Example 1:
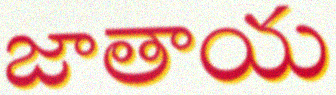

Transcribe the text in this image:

జాతాయ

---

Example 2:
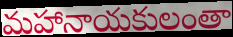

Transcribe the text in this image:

మహానాయకులంతా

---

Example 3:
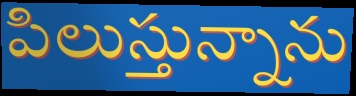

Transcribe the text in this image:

పిలుస్తున్నాను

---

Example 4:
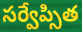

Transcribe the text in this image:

సర్వేప్సిత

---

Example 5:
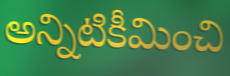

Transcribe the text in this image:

అన్నిటికీమించి